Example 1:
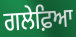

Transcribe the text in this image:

ਗਲੇਫ਼ਿਆ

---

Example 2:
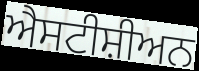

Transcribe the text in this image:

ਐਸਟੀਸ਼ੀਅਨ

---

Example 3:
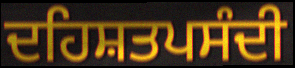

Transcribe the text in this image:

ਦਹਿਸ਼ਤਪਸੰਦੀ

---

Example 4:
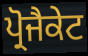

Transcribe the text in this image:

ਪ੍ਰੋਜੈਕੇਟ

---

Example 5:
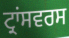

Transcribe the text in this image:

ਟ੍ਰਾਂਸਵਰਸ